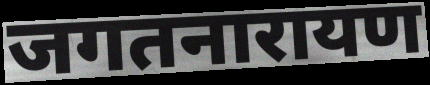
जगतनारायण